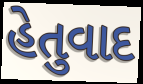
હેતુવાદ